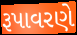
રૂપાવરણે